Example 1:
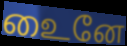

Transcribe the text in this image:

உைனே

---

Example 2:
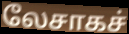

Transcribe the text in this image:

லேசாகச்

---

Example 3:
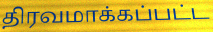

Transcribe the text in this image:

திரவமாக்கப்பட்ட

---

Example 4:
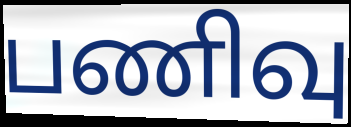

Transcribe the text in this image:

பணிவு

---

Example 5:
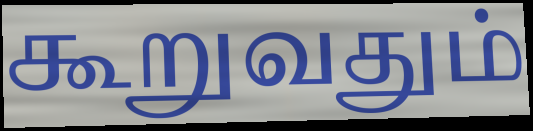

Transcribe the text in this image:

கூறுவதும்